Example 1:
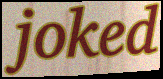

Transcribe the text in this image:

joked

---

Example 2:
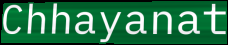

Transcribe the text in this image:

Chhayanat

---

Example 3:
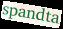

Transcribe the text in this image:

spandta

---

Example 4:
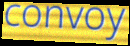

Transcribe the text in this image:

convoy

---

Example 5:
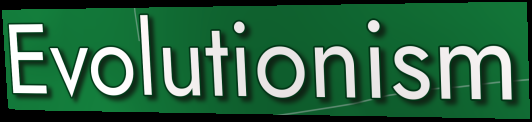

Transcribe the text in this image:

Evolutionism